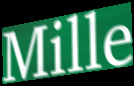
Mille